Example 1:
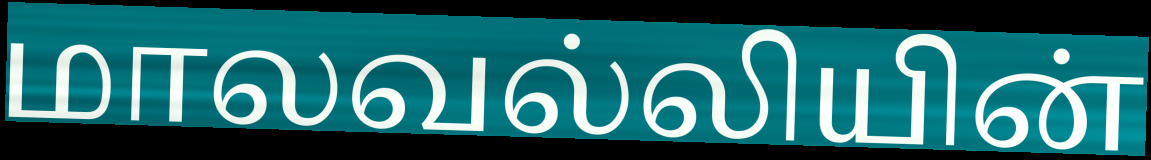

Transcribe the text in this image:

மாலவல்லியின்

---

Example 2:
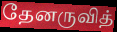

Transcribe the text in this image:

தேனருவித்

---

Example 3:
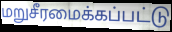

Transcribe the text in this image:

மறுசீரமைக்கப்பட்டு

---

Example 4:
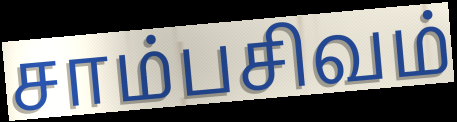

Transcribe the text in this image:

சாம்பசிவம்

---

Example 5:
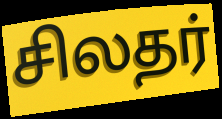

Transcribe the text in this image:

சிலதர்